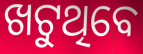
ଖଟୁଥିବେ